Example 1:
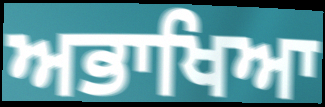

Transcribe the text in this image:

ਅਭਾਖਿਆ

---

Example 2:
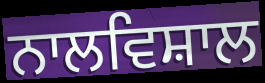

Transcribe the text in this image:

ਨਾਲਵਿਸ਼ਾਲ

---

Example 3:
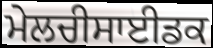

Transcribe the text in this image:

ਮੇਲਚੀਸਾਈਡਕ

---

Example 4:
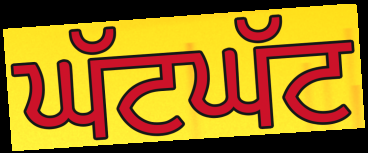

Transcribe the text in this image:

ਘੱਟਘੱਟ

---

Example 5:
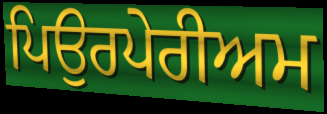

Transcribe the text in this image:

ਪਿਉਰਪੇਰੀਅਮ